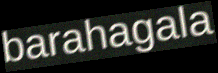
barahagala